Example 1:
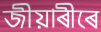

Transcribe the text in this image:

জীয়াৰীৰে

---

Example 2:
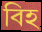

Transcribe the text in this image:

বিহ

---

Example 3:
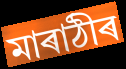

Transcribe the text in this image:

মাৰাঠীৰ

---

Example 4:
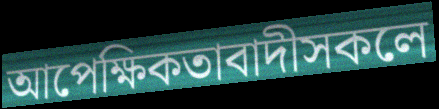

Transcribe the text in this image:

আপেক্ষিকতাবাদীসকলে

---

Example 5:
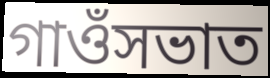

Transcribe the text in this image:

গাওঁসভাত